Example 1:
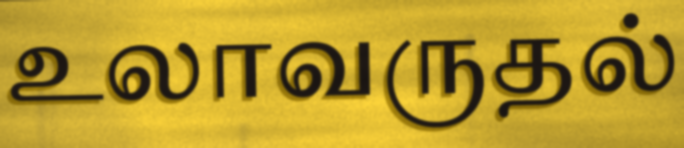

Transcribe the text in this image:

உலாவருதல்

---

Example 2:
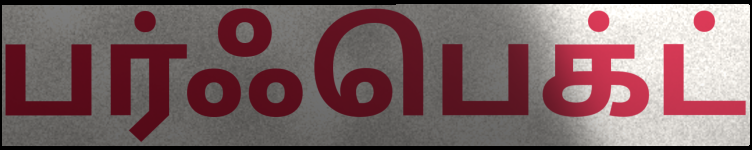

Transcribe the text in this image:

பர்ஃபெக்ட்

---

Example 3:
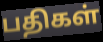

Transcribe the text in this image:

பதிகள்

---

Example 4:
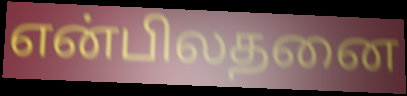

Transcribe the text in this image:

என்பிலதனை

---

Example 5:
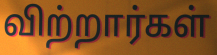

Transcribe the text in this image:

விற்றார்கள்